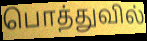
பொத்துவில்